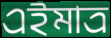
এইমাত্র